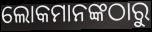
ଲୋକମାନଙ୍କଠାରୁ